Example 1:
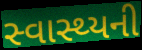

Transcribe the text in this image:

સ્વાસ્થ્યની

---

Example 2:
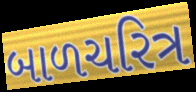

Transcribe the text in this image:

બાળચરિત્ર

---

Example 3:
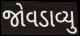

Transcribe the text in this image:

જોવડાવ્યુ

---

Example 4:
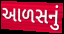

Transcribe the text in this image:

આળસનું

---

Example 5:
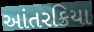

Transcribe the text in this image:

આંતરક્રિયા